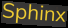
Sphinx